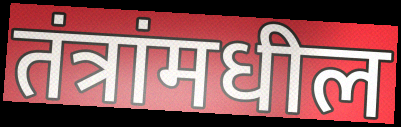
तंत्रांमधील